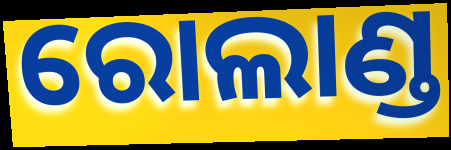
ରୋଲାଣ୍ଡ